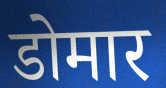
डोमार